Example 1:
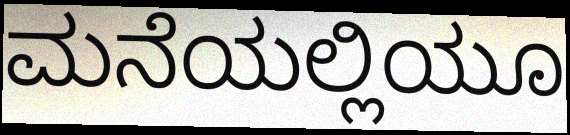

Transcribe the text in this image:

ಮನೆಯಲ್ಲಿಯೂ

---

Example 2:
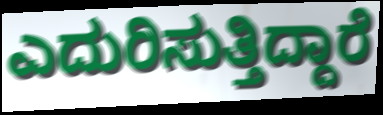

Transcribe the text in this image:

ಎದುರಿಸುತ್ತಿದ್ದಾರೆ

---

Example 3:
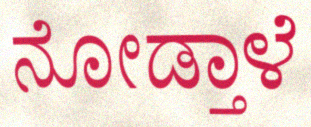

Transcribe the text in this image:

ನೋಡ್ತಾಳೆ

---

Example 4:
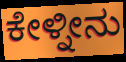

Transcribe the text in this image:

ಕೇಳ್ನೀನು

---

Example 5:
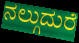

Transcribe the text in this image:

ನಲ್ಗುದುರೆ